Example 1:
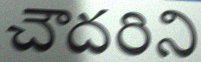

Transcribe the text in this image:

చౌదరిని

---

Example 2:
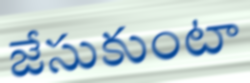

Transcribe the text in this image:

జేసుకుంటా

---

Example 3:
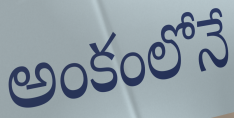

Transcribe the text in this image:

అంకంలోనే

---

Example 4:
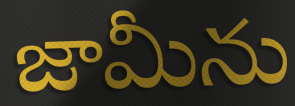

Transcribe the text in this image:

జామీను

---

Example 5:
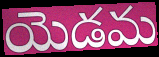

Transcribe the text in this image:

యెడమ